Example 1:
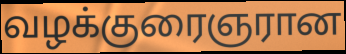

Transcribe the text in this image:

வழக்குரைஞரான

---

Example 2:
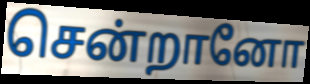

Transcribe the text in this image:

சென்றானோ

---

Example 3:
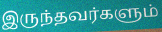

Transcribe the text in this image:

இருந்தவர்களும்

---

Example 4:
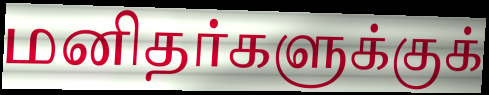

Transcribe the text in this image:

மனிதர்களுக்குக்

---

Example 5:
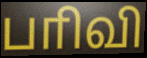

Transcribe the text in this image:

பரிவி